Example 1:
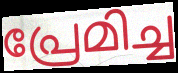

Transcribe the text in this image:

പ്രേമിച്ച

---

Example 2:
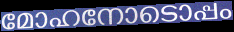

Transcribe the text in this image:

മോഹനോടൊപ്പം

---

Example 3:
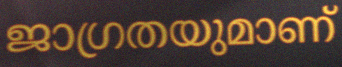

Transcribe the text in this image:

ജാഗ്രതയുമാണ്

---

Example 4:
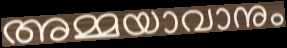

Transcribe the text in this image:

അമ്മയാവാനും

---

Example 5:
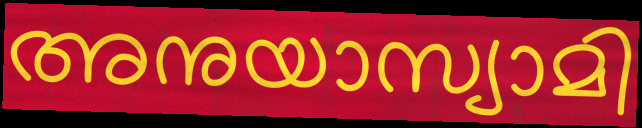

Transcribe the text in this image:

അനുയാസ്യാമി